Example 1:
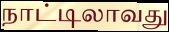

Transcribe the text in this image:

நாட்டிலாவது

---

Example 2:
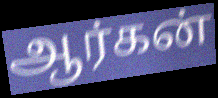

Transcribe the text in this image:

ஆர்கன்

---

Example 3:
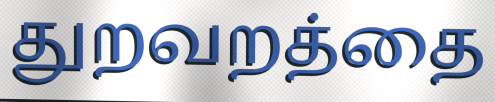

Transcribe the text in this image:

துறவறத்தை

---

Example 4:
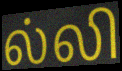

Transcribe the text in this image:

ல்லி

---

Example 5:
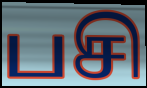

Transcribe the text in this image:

பசி